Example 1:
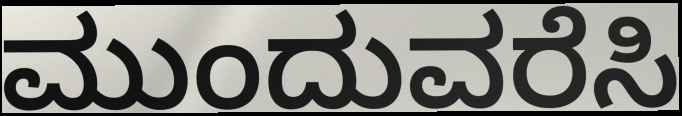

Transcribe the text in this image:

ಮುಂದುವರೆಸಿ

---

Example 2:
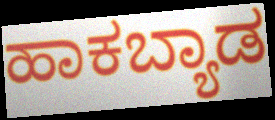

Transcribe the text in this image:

ಹಾಕಬ್ಯಾಡ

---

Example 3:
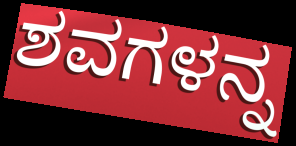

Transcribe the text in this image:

ಶವಗಳನ್ನ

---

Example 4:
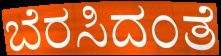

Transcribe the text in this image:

ಬೆರಸಿದಂತೆ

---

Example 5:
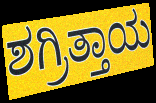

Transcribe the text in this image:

ಶಗ್ರಿತ್ತಾಯ